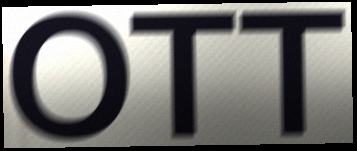
OTT